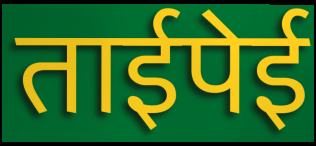
ताईपेई